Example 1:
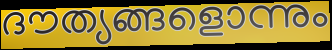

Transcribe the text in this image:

ദൗത്യങ്ങളൊന്നും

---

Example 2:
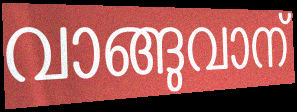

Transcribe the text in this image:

വാങ്ങുവാന്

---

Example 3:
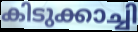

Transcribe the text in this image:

കിടുക്കാച്ചി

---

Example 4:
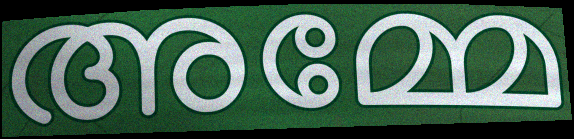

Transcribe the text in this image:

അമ്മേ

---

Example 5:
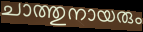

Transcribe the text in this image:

ചാത്തുനായരും